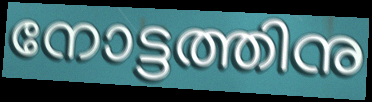
നോട്ടത്തിനു